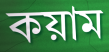
কয়াম